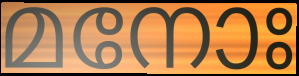
മനോഃ